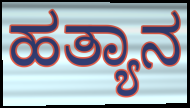
ಹತ್ಯಾನ